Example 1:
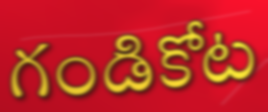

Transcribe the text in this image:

గండికోట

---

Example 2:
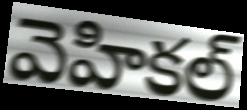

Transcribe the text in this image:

వెహికల్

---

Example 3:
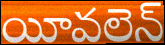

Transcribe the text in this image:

యీవలెన్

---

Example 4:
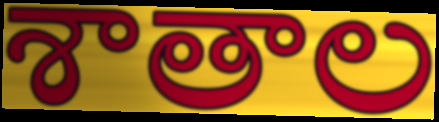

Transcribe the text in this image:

శాతాల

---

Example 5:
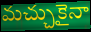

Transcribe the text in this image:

మచ్చుకైనా